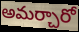
అమర్చారో